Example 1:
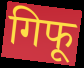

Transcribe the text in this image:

गिफू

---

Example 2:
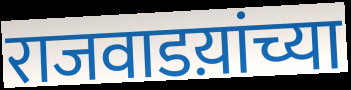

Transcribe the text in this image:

राजवाडय़ांच्या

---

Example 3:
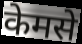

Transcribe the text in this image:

केमसे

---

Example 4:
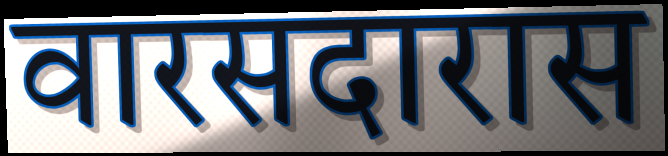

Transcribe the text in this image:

वारसदारास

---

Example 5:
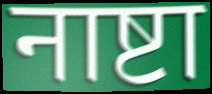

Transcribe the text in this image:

नाष्टा